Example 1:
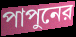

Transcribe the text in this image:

পাপুনের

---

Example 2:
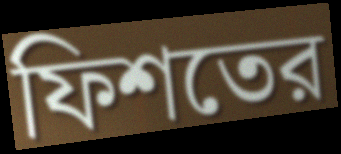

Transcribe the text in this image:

ফিশতের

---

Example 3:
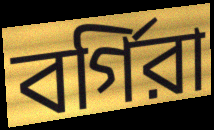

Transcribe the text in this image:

বর্গিরা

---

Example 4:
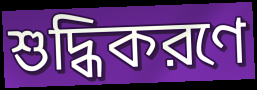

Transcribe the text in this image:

শুদ্ধিকরণে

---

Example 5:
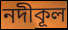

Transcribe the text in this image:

নদীকূল